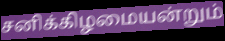
சனிக்கிழமையன்றும்